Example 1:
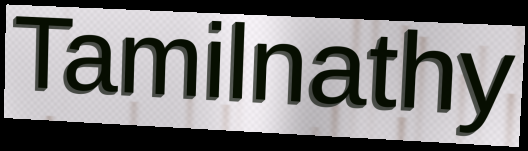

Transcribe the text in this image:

Tamilnathy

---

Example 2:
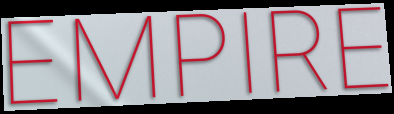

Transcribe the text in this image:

EMPIRE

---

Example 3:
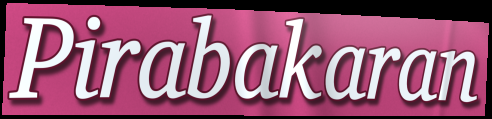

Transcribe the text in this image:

Pirabakaran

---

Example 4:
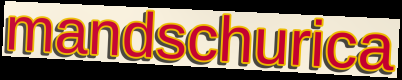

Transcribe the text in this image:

mandschurica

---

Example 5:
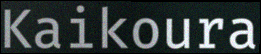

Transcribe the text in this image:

Kaikoura